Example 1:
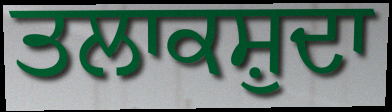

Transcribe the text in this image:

ਤਲਾਕਸ਼ੁਦਾ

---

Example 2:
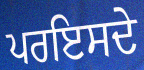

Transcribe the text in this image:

ਪਰਇਸਦੇ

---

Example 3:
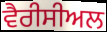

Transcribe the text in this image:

ਵੈਰੀਸੀਅਲ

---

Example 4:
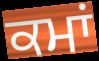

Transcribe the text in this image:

ਕਮਾਂ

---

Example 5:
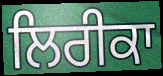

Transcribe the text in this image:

ਲਿਰੀਕਾ